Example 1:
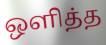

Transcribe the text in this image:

ஒளித்த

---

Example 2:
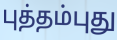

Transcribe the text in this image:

புத்தம்புது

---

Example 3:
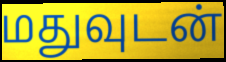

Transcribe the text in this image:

மதுவுடன்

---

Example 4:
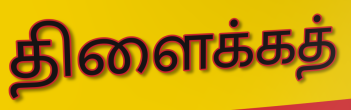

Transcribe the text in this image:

திளைக்கத்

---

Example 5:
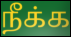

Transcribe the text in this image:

நீக்க